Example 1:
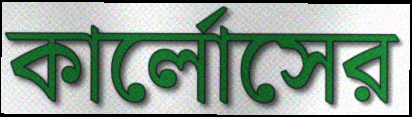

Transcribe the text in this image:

কার্লোসের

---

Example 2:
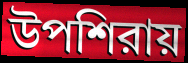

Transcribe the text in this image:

উপশিরায়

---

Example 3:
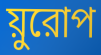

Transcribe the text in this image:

য়ুরোপ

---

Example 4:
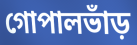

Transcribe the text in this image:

গোপালভাঁড়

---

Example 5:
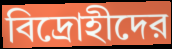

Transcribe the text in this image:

বিদ্রোহীদের